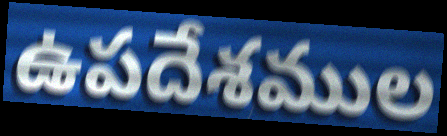
ఉపదేశముల